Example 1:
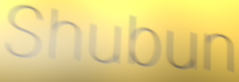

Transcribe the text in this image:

Shubun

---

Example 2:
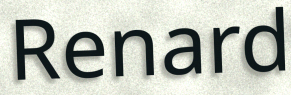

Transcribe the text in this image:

Renard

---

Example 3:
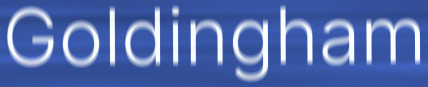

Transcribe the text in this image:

Goldingham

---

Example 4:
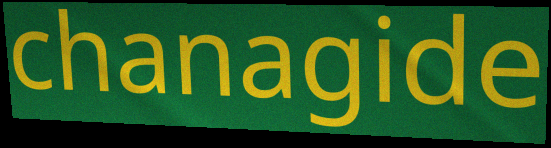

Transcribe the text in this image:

chanagide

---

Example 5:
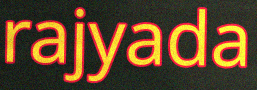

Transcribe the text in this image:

rajyada